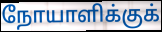
நோயாளிக்குக்